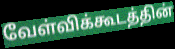
வேள்விக்கூடத்தின்